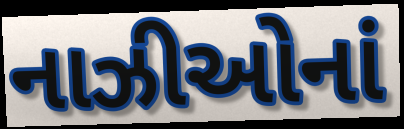
નાઝીઓનાં